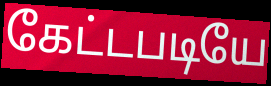
கேட்டபடியே